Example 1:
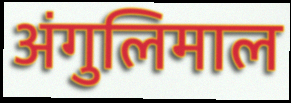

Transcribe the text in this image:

अंगुलिमाल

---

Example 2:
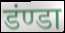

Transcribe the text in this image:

डंण्डा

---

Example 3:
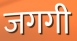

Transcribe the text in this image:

जगगी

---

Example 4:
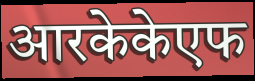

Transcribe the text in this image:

आरकेकेएफ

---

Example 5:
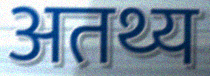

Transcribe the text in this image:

अतथ्य